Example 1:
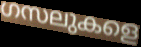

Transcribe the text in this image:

ഗസലുകളെ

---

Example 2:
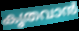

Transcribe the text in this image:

കൃതവാൻ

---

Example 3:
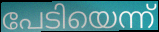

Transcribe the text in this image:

പേടിയെന്ന്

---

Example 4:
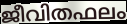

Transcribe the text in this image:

ജീവിതഫലം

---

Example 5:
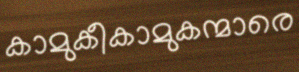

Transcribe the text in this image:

കാമുകീകാമുകന്മാരെ